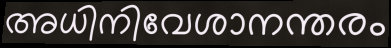
അധിനിവേശാനന്തരം